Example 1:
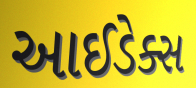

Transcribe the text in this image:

આઈડેક્સ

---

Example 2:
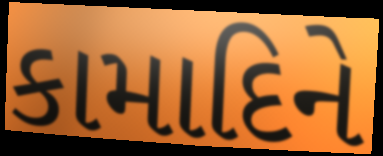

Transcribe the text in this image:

કામાદિને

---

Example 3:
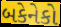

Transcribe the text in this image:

બકેનેકો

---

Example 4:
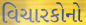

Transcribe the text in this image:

વિચારકોનો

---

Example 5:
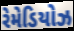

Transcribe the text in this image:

રેમેડિયોઝ